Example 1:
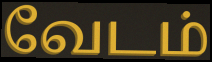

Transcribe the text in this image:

வேடம்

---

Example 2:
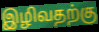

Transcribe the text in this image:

இழிவதற்கு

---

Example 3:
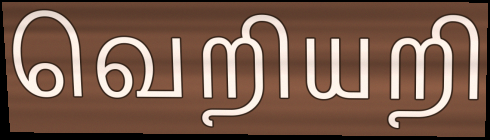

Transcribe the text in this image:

வெறியறி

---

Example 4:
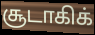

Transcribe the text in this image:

சூடாகிக்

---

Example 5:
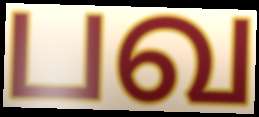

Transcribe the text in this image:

பவ